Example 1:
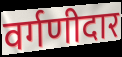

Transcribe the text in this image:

वर्गणीदार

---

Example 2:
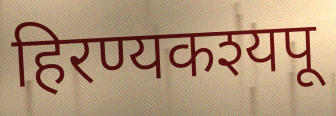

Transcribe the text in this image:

हिरण्यकश्यपू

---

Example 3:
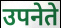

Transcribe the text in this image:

उपनेते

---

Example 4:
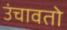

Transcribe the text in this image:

उंचावतो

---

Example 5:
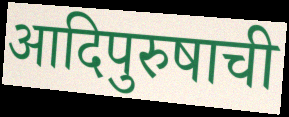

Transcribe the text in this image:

आदिपुरुषाची